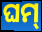
ଘମ୍